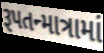
રૂપતન્માત્રામાં